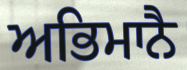
ਅਭਿਮਾਨੈ